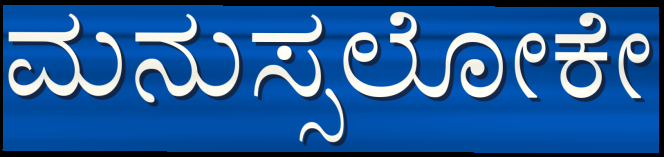
ಮನುಸ್ಸಲೋಕೇ